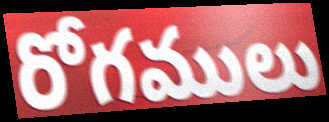
రోగములు